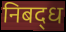
निबद्ध